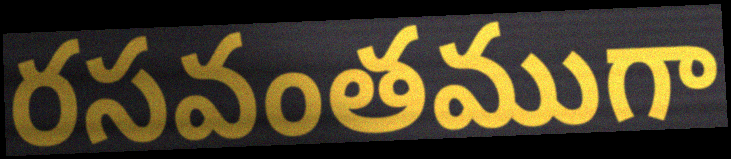
రసవంతముగా